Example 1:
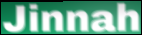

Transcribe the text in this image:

Jinnah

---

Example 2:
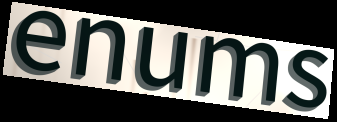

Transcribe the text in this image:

enums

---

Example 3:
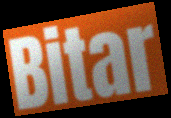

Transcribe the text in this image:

Bitar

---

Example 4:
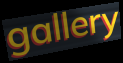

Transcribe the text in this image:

gallery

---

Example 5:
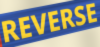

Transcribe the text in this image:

REVERSE